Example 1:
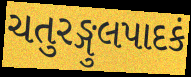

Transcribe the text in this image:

ચતુરઙ્ગુલપાદકં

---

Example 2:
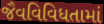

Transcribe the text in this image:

જૈવવિવિધતામાં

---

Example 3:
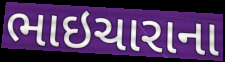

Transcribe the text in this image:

ભાઇચારાના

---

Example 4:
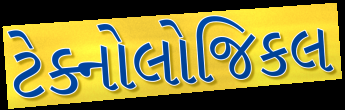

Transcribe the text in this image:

ટેક્નોલોજિકલ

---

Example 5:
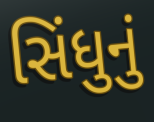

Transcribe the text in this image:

સિંધુનું